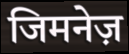
जिमनेज़